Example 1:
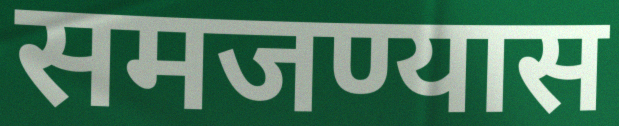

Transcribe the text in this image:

समजण्यास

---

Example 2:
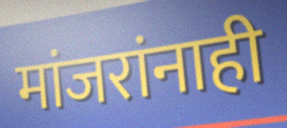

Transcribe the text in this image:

मांजरांनाही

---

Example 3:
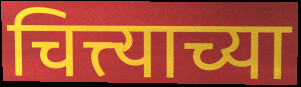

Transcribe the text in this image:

चित्त्याच्या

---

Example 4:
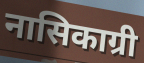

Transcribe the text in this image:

नासिकाग्री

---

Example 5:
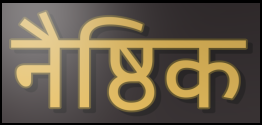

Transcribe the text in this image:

नैष्ठिक